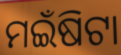
ମଇଁଷିଟା